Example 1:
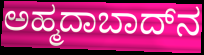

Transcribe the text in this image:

ಅಹ್ಮದಾಬಾದ್‌ನ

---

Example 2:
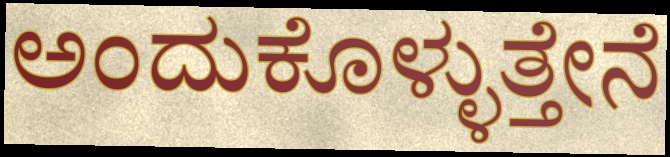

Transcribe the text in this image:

ಅಂದುಕೊಳ್ಳುತ್ತೇನೆ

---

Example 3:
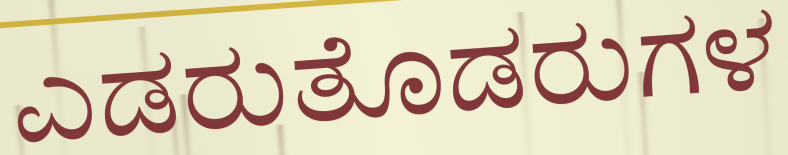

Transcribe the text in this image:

ಎಡರುತೊಡರುಗಳ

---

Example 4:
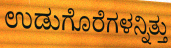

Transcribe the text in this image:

ಉಡುಗೊರೆಗಳನ್ನಿತ್ತು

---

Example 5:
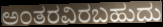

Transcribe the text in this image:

ಅಂತರವಿರಬಹುದು